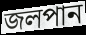
জলপান